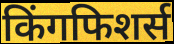
किंगफिशर्स